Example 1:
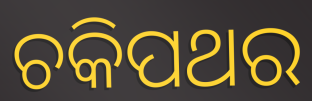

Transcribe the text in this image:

ଚକିପଥର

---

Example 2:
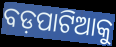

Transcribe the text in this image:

ବଡ଼ପାଟିଆକୁ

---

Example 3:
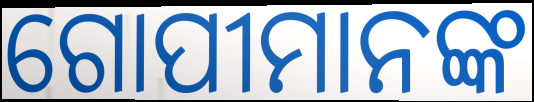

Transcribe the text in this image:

ଗୋପୀମାନଙ୍କ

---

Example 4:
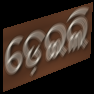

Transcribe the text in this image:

ଡ଼େଇଲି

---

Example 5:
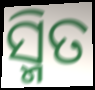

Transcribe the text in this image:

ସ୍ମିତ